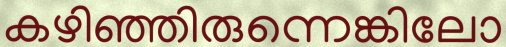
കഴിഞ്ഞിരുന്നെങ്കിലോ